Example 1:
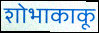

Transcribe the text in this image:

शोभाकाकू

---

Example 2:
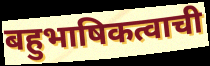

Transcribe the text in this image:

बहुभाषिकत्वाची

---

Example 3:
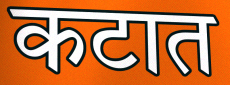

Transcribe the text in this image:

कटात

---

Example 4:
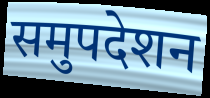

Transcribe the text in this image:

समुपदेशन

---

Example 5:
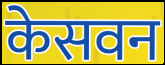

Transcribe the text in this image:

केसवन